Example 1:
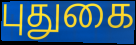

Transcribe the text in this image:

புதுகை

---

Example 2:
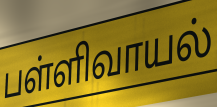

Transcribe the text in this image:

பள்ளிவாயல்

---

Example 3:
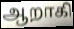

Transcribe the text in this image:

ஆறாகி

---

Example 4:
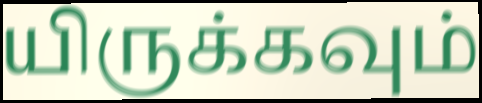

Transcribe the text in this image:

யிருக்கவும்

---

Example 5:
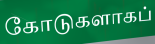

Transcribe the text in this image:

கோடுகளாகப்